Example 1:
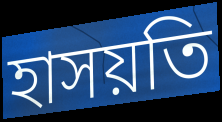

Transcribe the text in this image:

হাসয়তি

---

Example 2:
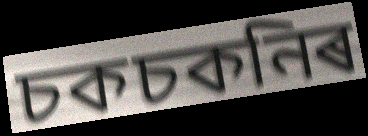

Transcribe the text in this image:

চকচকনিৰ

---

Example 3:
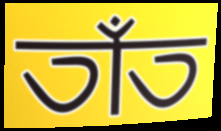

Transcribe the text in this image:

তাঁত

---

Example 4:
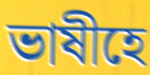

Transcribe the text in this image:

ভাষীহে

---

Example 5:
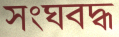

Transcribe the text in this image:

সংঘবদ্ধ